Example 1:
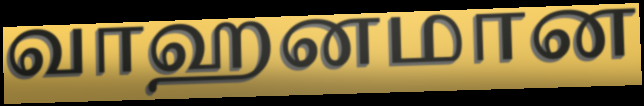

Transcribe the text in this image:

வாஹனமான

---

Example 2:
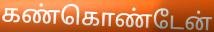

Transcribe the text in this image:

கண்கொண்டேன்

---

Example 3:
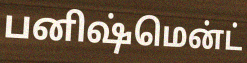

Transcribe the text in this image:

பனிஷ்மென்ட்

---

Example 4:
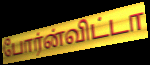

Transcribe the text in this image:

போர்ன்விட்டா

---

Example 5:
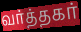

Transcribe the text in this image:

வர்த்தகர்